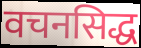
वचनसिद्ध